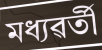
মধ্যৱৰ্তী